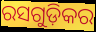
ରସଗୁଡ଼ିକର